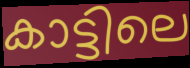
കാട്ടിലെ